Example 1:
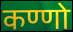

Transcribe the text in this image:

कण्णो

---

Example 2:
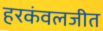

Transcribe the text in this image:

हरकंवलजीत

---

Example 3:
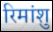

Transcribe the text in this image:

रिमांशु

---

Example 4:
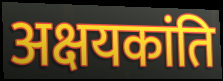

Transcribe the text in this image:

अक्षयकांति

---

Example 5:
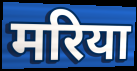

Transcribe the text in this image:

मरिया